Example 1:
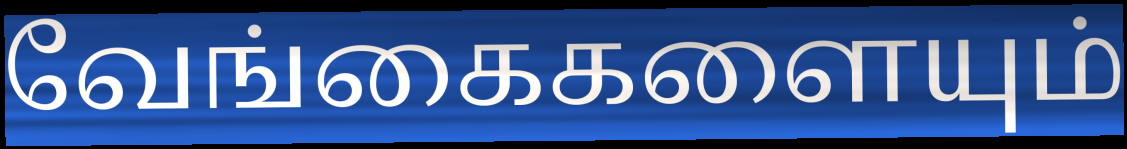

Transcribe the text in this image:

வேங்கைகளையும்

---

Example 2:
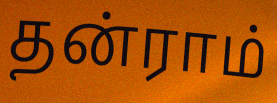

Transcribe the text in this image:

தன்ராம்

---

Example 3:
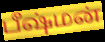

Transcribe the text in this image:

பீஷ்மன்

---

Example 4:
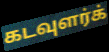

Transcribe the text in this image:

கடவுளர்க்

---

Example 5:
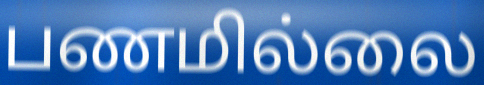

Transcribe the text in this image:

பணமில்லை